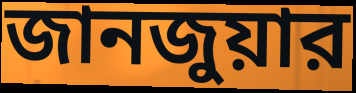
জানজুয়ার